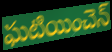
ఘటియించెన్